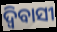
ଦ୍ବିବାସୀ